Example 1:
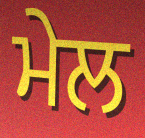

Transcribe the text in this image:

ਮੇਲ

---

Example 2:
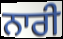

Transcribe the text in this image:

ਨਾਰੀ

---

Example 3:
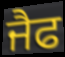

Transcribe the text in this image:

ਜੈਫ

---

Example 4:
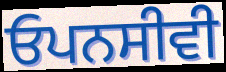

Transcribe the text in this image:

ਓਪਨਸੀਵੀ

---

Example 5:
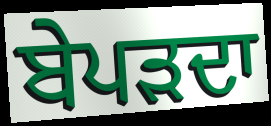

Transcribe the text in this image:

ਬੇਪੜਦਾ